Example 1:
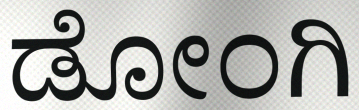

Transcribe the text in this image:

ಡೋಂಗಿ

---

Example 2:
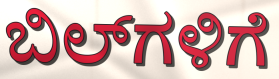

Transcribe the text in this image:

ಬಿಲ್‌ಗಳಿಗೆ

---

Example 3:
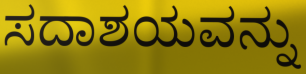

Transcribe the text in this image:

ಸದಾಶಯವನ್ನು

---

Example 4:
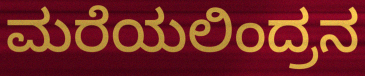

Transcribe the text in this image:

ಮರೆಯಲಿಂದ್ರನ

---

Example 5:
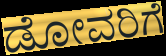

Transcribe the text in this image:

ಡೋವರಿಗೆ